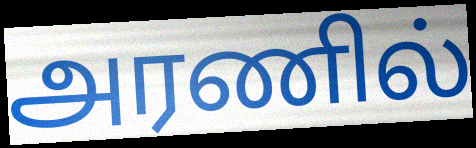
அரணில்